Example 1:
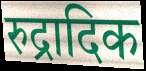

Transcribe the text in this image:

रुद्रादिक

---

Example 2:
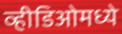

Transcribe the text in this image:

व्हीडिओमध्ये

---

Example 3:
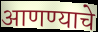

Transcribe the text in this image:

आणण्याचे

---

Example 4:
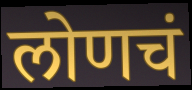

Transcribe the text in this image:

लोणचं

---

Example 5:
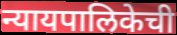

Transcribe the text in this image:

न्यायपालिकेची